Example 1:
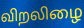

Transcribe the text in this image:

விறலிழை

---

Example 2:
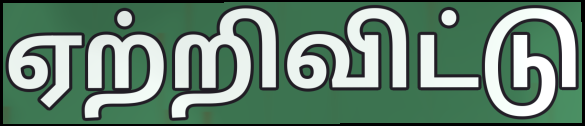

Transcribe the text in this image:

ஏற்றிவிட்டு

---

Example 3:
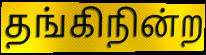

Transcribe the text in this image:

தங்கிநின்ற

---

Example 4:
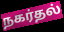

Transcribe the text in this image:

நகர்தல்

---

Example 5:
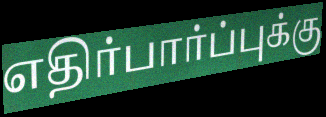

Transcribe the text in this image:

எதிர்பார்ப்புக்கு